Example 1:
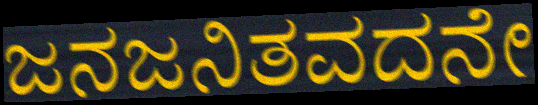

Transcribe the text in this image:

ಜನಜನಿತವದನೇ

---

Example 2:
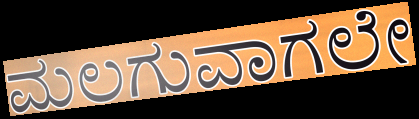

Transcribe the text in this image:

ಮಲಗುವಾಗಲೇ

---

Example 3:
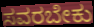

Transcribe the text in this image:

ಸವರಬೇಕು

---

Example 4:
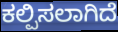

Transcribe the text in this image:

ಕಲ್ಪಿಸಲಾಗಿದೆ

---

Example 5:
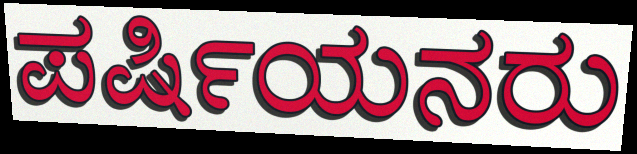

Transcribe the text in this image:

ಪರ್ಷಿಯನರು